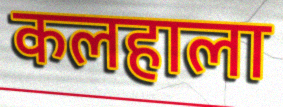
कलहाला